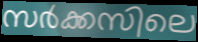
സർക്കസിലെ